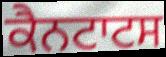
ਕੈਨਟਾਟਸ